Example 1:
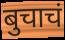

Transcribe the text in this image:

बुचाचं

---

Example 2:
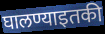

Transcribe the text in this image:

घालण्याइतकी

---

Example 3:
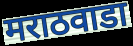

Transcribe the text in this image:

मराठवाडा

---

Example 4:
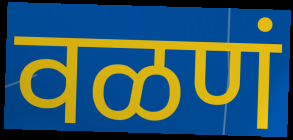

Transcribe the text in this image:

वळणं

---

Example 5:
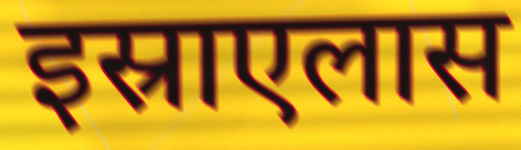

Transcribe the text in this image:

इस्राएलास